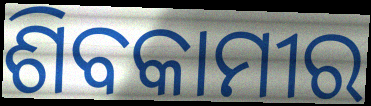
ଶିବକାମୀର